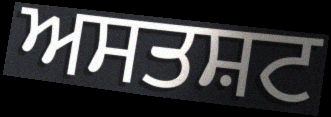
ਅਸਤਸ਼ਟ